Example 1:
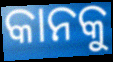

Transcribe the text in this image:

କାନକୁ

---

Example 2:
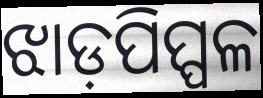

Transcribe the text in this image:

ଝାଡ଼ପିପ୍ପଳ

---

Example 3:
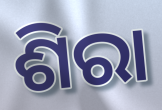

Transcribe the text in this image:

ଶିରା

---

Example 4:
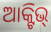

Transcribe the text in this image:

ଆକ୍ଟିଭ୍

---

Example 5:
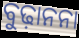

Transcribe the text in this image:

ବୁଢ଼ାନନା